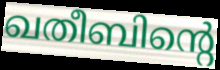
ഖതീബിന്റെ